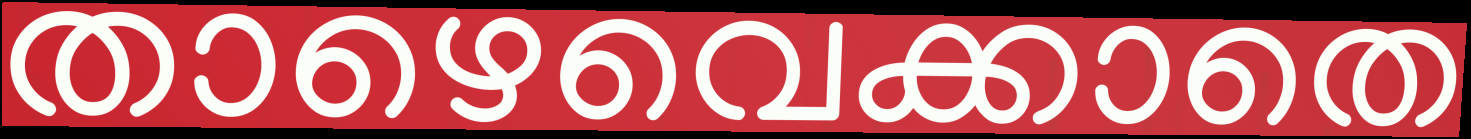
താഴെവെക്കാതെ